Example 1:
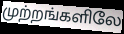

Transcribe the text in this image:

முற்றங்களிலே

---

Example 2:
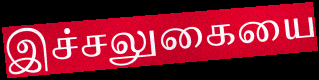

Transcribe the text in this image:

இச்சலுகையை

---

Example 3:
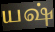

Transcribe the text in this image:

யஷ்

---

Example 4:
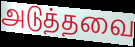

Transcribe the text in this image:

அடுத்தவை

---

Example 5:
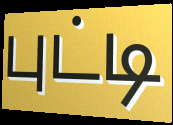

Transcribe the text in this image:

புட்டி